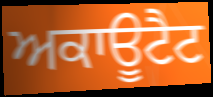
ਅਕਾਊਟੈਟ